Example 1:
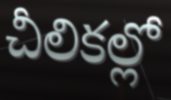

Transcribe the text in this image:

చీలికల్లో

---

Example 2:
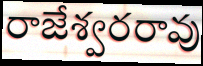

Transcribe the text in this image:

రాజేశ్వరరావు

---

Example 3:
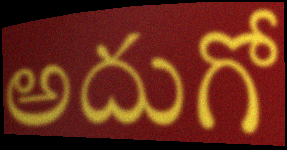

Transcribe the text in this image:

అదుగో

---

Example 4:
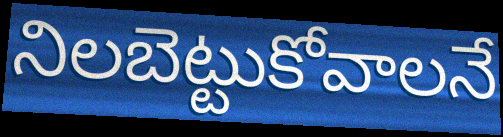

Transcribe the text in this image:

నిలబెట్టుకోవాలనే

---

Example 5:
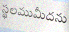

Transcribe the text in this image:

స్థలముమీదను